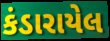
કંડારાયેલ